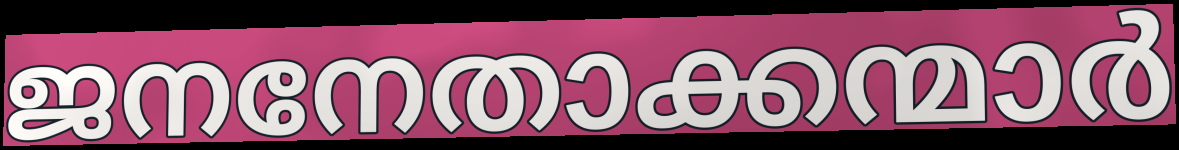
ജനനേതാക്കന്മാർ